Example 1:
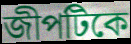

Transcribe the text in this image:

জীপটিকে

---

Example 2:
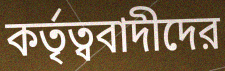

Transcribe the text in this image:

কর্তৃত্ববাদীদের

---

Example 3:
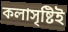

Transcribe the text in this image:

কলাসৃষ্টিই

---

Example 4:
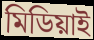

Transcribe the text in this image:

মিডিয়াই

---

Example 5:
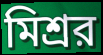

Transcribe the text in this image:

মিশ্রর